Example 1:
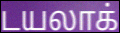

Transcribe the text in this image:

டயலாக்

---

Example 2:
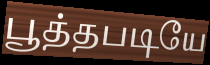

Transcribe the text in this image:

பூத்தபடியே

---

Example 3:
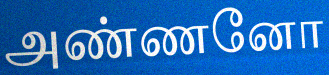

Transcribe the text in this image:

அண்ணனோ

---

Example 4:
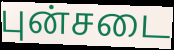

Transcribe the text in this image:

புன்சடை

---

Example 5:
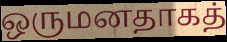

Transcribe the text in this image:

ஒருமனதாகத்